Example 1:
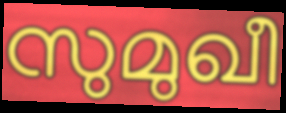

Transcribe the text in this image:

സുമുഖീ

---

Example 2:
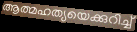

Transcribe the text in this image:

ആത്മഹത്യയെക്കുറിച്ച്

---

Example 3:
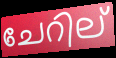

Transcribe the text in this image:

ചേറില്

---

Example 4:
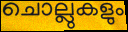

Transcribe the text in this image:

ചൊല്ലുകളും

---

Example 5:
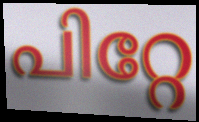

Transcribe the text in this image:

പിറ്റേ